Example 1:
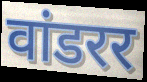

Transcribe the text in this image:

वांडरर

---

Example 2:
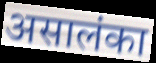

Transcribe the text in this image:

असालंका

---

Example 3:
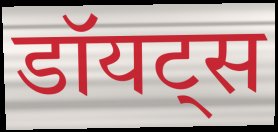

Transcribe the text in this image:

डॉयट्स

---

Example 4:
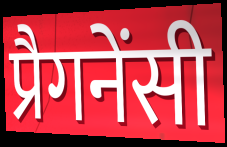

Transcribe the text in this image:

प्रैगनेंसी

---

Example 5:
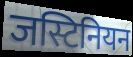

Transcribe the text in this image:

जस्टिनियन